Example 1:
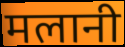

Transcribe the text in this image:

मलानी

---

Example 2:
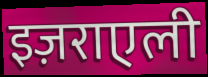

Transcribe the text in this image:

इज़राएली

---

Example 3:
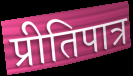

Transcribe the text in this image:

प्रीतिपात्र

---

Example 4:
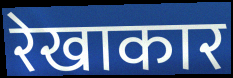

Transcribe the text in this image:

रेखाकार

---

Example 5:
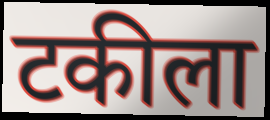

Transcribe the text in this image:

टकीला